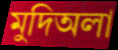
মুদিঅলা